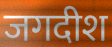
जगदीश